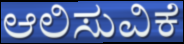
ಆಲಿಸುವಿಕೆ